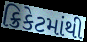
ક્રિકેટમાંથી